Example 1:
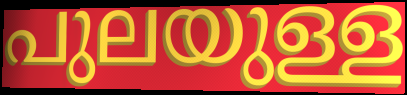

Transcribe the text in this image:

പുലയുള്ള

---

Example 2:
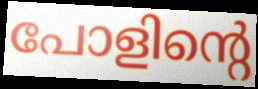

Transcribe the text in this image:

പോളിന്റെ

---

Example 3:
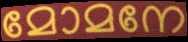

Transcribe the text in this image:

മോമനേ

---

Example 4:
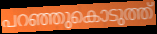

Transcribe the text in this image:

പറഞ്ഞുകൊടുത്ത്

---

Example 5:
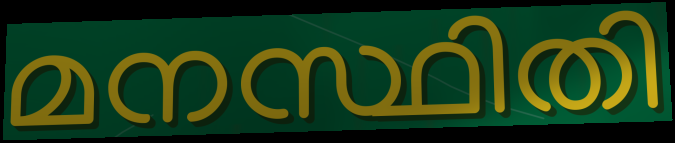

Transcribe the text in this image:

മനസ്ഥിതി